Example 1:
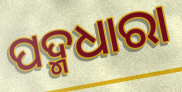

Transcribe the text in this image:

ପଦ୍ମଧାରା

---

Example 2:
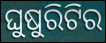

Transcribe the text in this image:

ଘୁଷୁରିଟିର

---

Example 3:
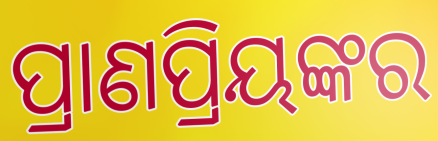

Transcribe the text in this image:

ପ୍ରାଣପ୍ରିୟଙ୍କର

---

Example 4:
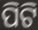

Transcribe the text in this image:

ପିଟି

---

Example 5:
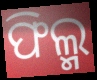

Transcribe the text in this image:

ଫିଲ୍ମ